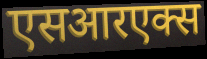
एसआरएक्स